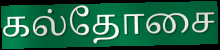
கல்தோசை